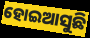
ହୋଇଆସୁଛି